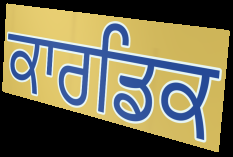
ਕਾਰਡਿਕ